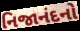
નિજાનંદનો